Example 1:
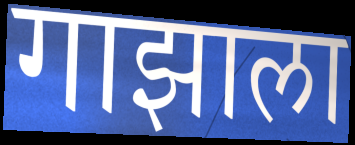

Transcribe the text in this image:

गाझाला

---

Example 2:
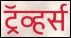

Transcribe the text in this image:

ट्रॅव्हर्स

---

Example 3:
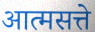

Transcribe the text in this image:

आत्मसत्ते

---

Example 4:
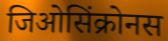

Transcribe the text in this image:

जिओसिंक्रोनस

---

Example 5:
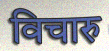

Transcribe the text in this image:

विचारु